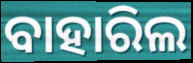
ବାହାରିଲ